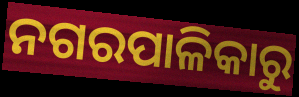
ନଗରପାଳିକାରୁ